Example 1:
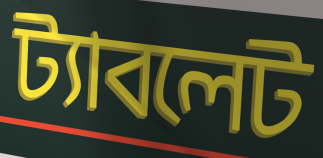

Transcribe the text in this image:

ট্যাবলেট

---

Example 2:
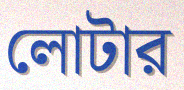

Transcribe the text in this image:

লোটার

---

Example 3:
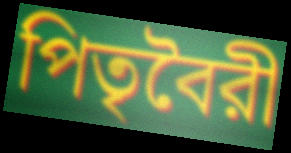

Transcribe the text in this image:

পিতৃবৈরী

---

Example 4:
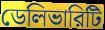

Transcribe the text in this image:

ডেলিভারিটি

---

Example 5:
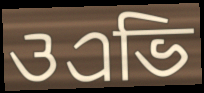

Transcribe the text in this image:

ওএভি